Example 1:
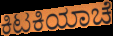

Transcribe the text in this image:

ಕಿಟಕಿಯಾಚೆ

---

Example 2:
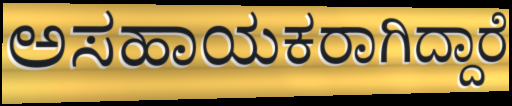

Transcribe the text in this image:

ಅಸಹಾಯಕರಾಗಿದ್ದಾರೆ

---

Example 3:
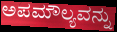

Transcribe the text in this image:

ಅಪಮೌಲ್ಯವನ್ನು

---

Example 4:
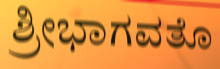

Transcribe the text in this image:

ಶ್ರೀಭಾಗವತೊ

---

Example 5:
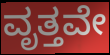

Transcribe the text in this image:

ವೃತ್ತವೇ